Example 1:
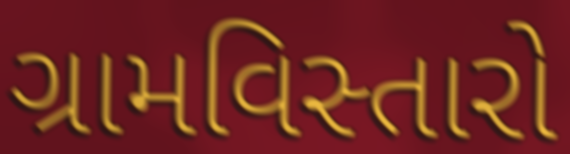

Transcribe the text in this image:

ગ્રામવિસ્તારો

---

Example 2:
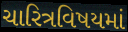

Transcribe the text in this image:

ચારિત્રવિષયમાં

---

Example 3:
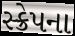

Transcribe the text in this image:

સ્ક્રેપના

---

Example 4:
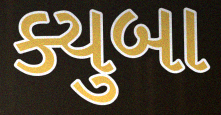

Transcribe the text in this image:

ક્યુબા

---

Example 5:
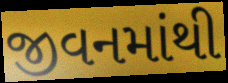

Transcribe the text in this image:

જીવનમાંથી